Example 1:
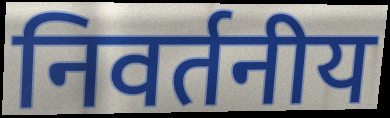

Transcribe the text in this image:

निवर्तनीय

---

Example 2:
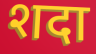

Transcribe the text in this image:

शदा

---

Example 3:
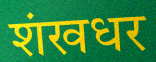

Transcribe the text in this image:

शंखधर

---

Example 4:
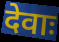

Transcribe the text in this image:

देवाः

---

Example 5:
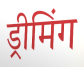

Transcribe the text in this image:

ड्रीमिंग